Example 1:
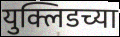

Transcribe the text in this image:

युक्लिडच्या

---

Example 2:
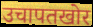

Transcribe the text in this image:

उचापतखोर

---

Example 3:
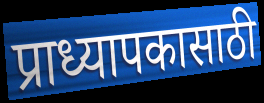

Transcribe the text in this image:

प्राध्यापकासाठी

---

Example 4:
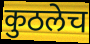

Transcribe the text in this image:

कुठलेच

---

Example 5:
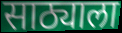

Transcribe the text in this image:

साठ्याला